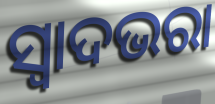
ସ୍ଵାଦଭରା